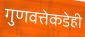
गुणवत्तेकडेही